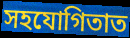
সহযোগিতাত